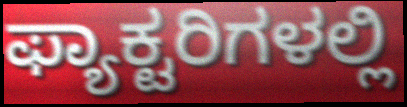
ಫ್ಯಾಕ್ಟರಿಗಳಲ್ಲಿ